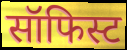
सॉफिस्ट